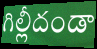
గిల్లీదండా